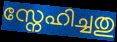
സ്നേഹിച്ചതു